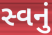
સ્વનું